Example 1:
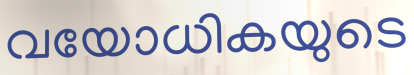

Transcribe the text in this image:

വയോധികയുടെ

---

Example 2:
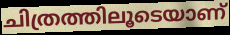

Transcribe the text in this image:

ചിത്രത്തിലൂടെയാണ്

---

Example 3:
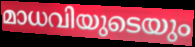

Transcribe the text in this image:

മാധവിയുടെയും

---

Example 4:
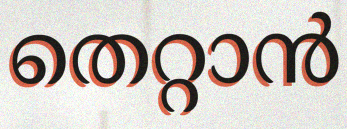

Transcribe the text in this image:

തെറ്റാൻ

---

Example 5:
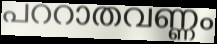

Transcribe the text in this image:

പററാതവണ്ണം